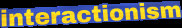
interactionism